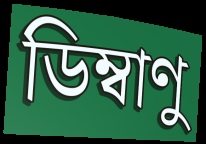
ডিম্বাণু